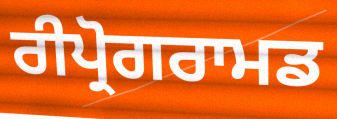
ਰੀਪ੍ਰੋਗਰਾਮਡ